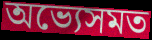
অভ্যেসমত